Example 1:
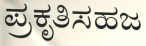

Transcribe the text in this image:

ಪ್ರಕೃತಿಸಹಜ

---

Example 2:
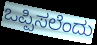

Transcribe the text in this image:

ಒಪ್ಪಿಸಲೆಂದು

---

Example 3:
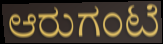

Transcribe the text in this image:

ಆರುಗಂಟೆ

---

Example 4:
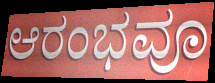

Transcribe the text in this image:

ಆರಂಭವೂ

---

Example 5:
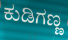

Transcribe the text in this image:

ಕುಡಿಗಣ್ಣ